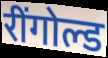
रींगोल्ड